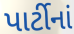
પાર્ટીનાં